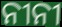
ନୀନୀ